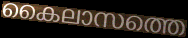
കൈലാസത്തെ